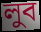
লুব